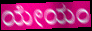
ಯೇಯಂ